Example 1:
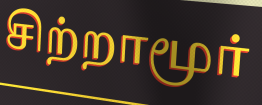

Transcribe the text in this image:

சிற்றாமூர்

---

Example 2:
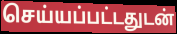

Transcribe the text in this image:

செய்யப்பட்டதுடன்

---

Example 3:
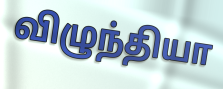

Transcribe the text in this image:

விழுந்தியா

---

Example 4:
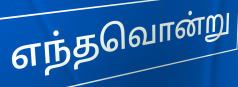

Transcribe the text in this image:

எந்தவொன்று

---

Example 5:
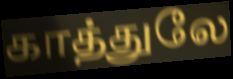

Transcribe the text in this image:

காத்துலே